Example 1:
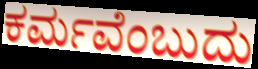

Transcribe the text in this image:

ಕರ್ಮವೆಂಬುದು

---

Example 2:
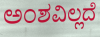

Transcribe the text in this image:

ಅಂಶವಿಲ್ಲದೆ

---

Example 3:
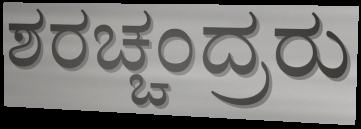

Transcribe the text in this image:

ಶರಚ್ಚಂದ್ರರು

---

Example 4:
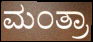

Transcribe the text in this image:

ಮಂತ್ರಾ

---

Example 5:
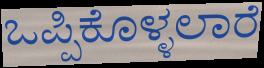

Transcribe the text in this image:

ಒಪ್ಪಿಕೊಳ್ಳಲಾರೆ